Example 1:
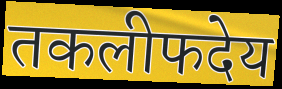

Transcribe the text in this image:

तकलीफदेय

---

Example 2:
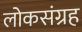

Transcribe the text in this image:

लोकसंग्रह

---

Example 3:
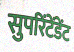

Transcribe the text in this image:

सुपरिंटेंडेंट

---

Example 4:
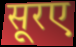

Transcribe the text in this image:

सूरए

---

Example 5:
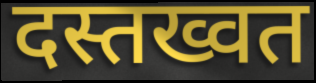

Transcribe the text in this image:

दस्तख्वत